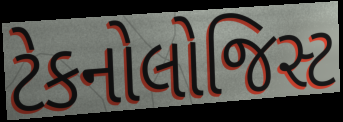
ટેકનોલોજિસ્ટ